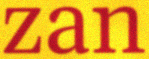
zan